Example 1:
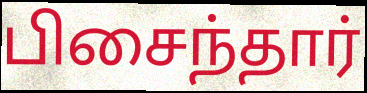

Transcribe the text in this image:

பிசைந்தார்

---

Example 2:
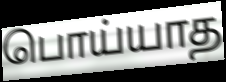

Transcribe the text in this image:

பொய்யாத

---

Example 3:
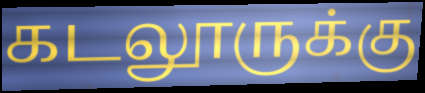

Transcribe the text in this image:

கடலூருக்கு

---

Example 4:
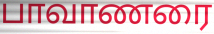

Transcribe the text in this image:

பாவாணரை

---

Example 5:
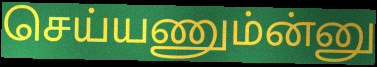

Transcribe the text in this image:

செய்யணும்ன்னு